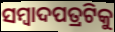
ସମ୍ବାଦପତ୍ରଟିକୁ